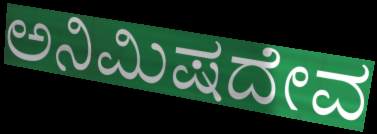
ಅನಿಮಿಷದೇವ